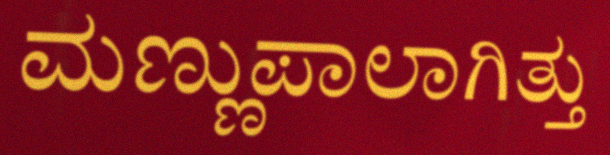
ಮಣ್ಣುಪಾಲಾಗಿತ್ತು